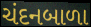
ચંદનબાળા